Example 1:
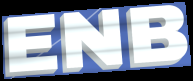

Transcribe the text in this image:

ENB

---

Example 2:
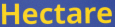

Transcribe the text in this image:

Hectare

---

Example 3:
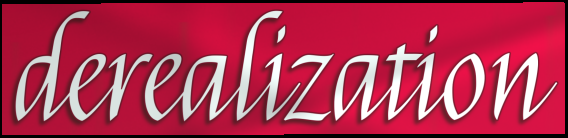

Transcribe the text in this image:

derealization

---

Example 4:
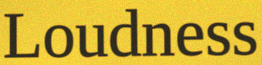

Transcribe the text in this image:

Loudness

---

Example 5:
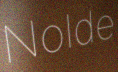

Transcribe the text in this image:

Nolde